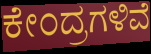
ಕೇಂದ್ರಗಳಿವೆ